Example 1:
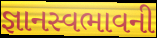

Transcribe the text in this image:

જ્ઞાનસ્વભાવની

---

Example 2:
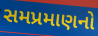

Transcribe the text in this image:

સમપ્રમાણનો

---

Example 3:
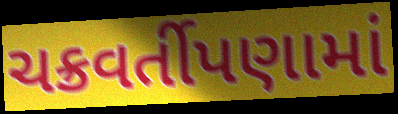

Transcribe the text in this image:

ચક્રવર્તીપણામાં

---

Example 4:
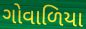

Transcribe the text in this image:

ગોવાળિયા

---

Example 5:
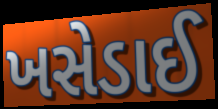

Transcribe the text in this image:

ખસેડાઈ